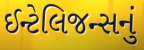
ઈન્ટેલિજન્સનું